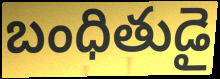
బంధితుడై